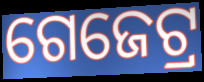
ଗେଜେଟ୍ର